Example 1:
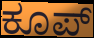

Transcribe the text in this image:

ಕೂಪ್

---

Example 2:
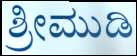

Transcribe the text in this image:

ಶ್ರೀಮುಡಿ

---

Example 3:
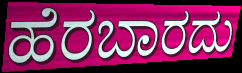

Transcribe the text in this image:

ಹೆರಬಾರದು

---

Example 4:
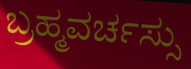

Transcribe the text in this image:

ಬ್ರಹ್ಮವರ್ಚಸ್ಸು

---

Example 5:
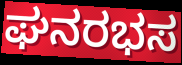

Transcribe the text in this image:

ಘನರಭಸ